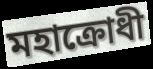
মহাক্রোধী